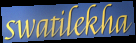
swatilekha